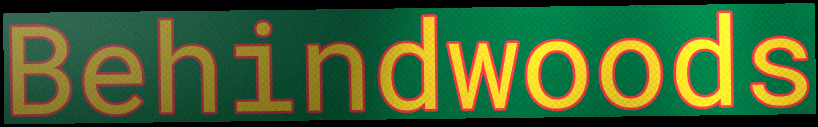
Behindwoods